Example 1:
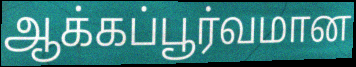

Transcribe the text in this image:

ஆக்கப்பூர்வமான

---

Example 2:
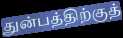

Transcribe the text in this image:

துன்பத்திற்குத்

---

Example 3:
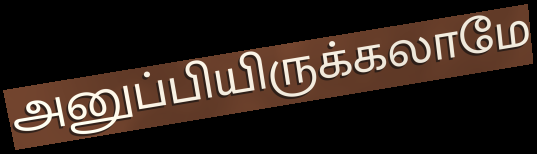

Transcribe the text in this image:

அனுப்பியிருக்கலாமே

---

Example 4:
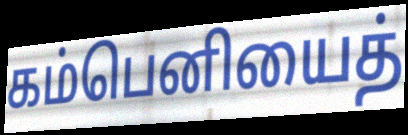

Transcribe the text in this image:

கம்பெனியைத்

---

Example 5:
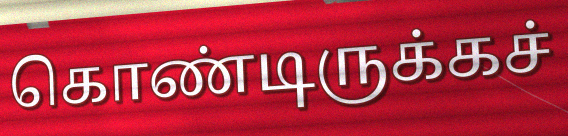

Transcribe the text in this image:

கொண்டிருக்கச்